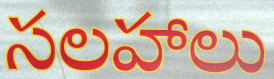
సలహాలు